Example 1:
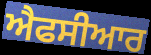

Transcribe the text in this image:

ਐਫਸੀਆਰ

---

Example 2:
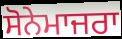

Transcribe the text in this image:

ਸੋਨੇਮਾਜਰਾ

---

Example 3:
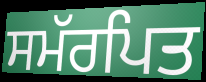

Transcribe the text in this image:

ਸਮੱਰਪਿਤ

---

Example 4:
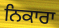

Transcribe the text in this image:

ਨਿਕਾਰਾ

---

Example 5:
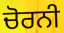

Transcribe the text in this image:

ਚੋਰਨੀ